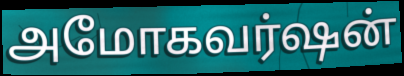
அமோகவர்ஷன்